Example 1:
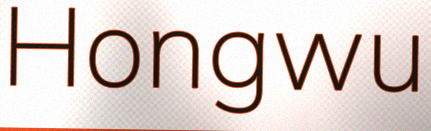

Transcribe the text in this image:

Hongwu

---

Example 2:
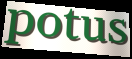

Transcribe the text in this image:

potus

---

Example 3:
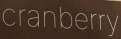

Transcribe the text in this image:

cranberry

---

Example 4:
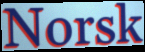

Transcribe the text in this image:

Norsk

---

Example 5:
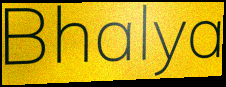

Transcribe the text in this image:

Bhalya